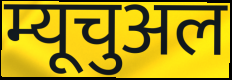
म्यूचुअल